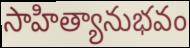
సాహిత్యానుభవం